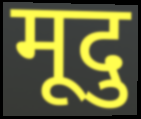
मूदु